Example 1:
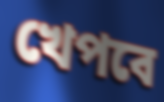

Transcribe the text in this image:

খেপবে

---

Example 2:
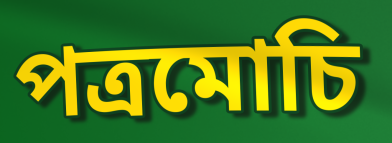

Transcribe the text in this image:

পত্রমোচি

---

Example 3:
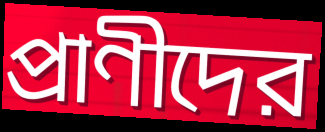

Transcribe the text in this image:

প্রাণীদের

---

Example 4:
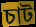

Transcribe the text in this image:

চাট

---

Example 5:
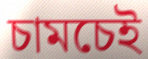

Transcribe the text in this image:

চামচেই